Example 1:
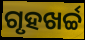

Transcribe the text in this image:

ଗୃହଖର୍ଚ୍ଚ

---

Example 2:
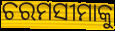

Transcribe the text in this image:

ଚରମସୀମାକୁ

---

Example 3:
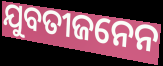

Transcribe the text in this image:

ଯୁବତୀଜନେନ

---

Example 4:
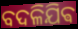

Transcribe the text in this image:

ବଦଳିଯିଵ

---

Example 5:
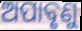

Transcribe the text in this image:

ଅପାବୃଣୁ